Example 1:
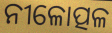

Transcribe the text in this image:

ନୀଳୋତ୍ପଳ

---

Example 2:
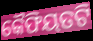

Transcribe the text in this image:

କୈଫିୟତଟି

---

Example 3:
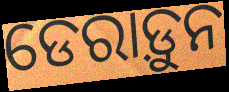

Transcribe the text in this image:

ଡେରାଡ଼ୁନ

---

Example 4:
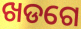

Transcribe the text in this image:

ଖଡଗେ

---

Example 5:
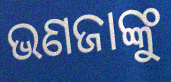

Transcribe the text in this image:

ଭଣଜାଙ୍କୁ